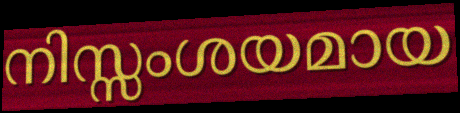
നിസ്സംശയമായ